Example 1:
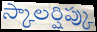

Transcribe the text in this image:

స్కాలర్షిప్కు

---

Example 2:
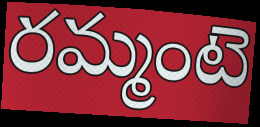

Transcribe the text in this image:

రమ్మంటె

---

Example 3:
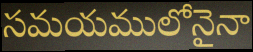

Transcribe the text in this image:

సమయములోనైనా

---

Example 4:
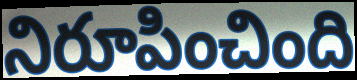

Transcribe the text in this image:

నిరూపించింది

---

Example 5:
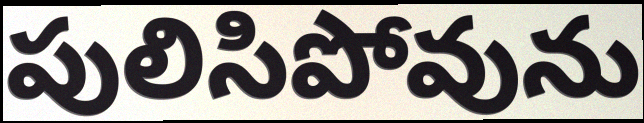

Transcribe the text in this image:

పులిసిపోవును